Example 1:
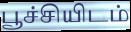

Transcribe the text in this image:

பூச்சியிடம்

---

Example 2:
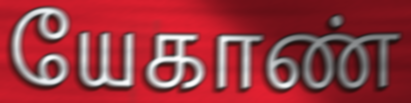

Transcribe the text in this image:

யேகாண்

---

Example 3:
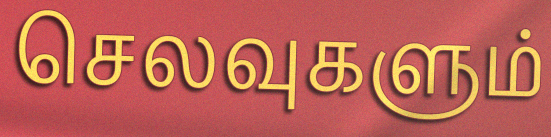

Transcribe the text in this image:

செலவுகளும்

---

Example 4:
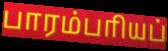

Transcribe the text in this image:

பாரம்பரியப்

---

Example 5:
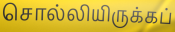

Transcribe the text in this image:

சொல்லியிருக்கப்